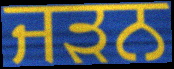
ਜੜਨ